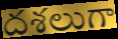
దశలుగా